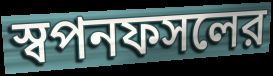
স্বপনফসলের